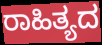
ರಾಹಿತ್ಯದ